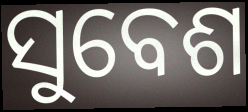
ସୁବେଶ